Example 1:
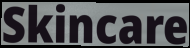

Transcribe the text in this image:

Skincare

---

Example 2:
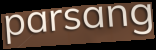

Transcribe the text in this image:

parsang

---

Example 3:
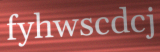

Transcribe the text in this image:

fyhwscdcj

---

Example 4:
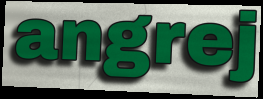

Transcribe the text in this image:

angrej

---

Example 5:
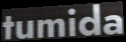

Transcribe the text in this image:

tumida